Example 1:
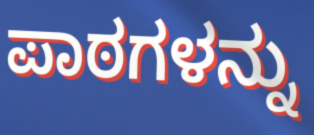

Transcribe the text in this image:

ಪಾಠಗಳನ್ನು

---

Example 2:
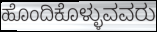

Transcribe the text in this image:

ಹೊಂದಿಕೊಳ್ಳುವವರು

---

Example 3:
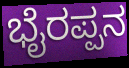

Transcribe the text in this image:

ಭೈರಪ್ಪನ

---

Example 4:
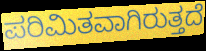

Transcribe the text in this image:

ಪರಿಮಿತವಾಗಿರುತ್ತದೆ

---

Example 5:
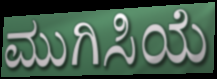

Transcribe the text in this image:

ಮುಗಿಸಿಯೆ